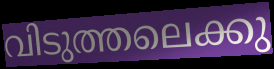
വിടുത്തലെക്കു